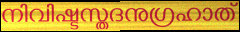
നിവിഷ്ടസ്തദനുഗ്രഹാത്